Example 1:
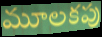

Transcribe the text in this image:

మూలకపు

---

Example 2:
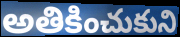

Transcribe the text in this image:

అతికించుకుని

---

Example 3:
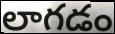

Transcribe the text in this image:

లాగడం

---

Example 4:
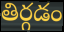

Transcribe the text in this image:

తిర్గడం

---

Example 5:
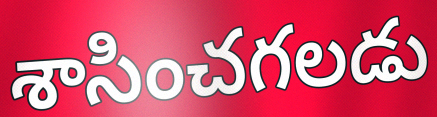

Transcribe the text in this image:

శాసించగలడు